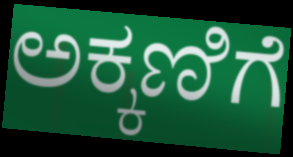
ಅಕ್ಕಣಿಗೆ